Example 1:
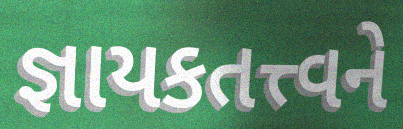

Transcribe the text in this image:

જ્ઞાયકતત્ત્વને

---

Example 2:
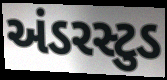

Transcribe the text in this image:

અંડરસ્ટુડ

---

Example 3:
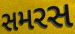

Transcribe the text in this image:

સમરસ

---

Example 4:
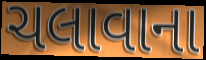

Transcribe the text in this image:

ચલાવાના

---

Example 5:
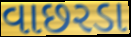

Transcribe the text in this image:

વાછરડા